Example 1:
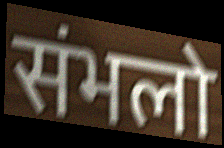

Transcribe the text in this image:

संभलो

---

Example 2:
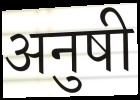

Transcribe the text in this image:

अनुषी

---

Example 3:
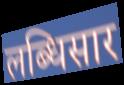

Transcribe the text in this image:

लब्धिसार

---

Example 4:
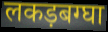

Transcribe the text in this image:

लकड़बग्घा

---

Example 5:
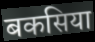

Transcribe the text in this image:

बकसिया